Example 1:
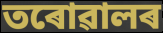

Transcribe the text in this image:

তৰোৱালৰ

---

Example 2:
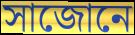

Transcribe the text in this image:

সাজোনে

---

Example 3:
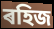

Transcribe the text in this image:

ৰহিজ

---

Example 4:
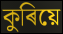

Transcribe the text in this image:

কুৰিয়ে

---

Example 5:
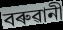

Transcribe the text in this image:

বৰুৱানী